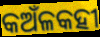
କଅଁଳକହୀ